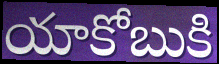
యాకోబుకి